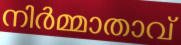
നിർമ്മാതാവ്